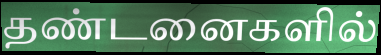
தண்டனைகளில்